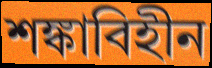
শঙ্কাবিহীন